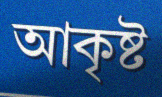
আকৃষ্ট